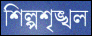
শিল্পশৃঙ্খল